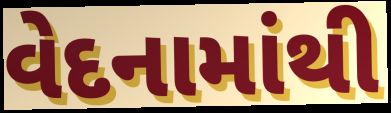
વેદનામાંથી